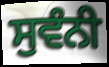
ਸੁਵੰਨੀ